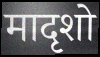
मादृशो